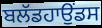
ਬਲੱਡਹਾਉਂਡਸ